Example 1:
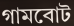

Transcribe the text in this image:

গামবোট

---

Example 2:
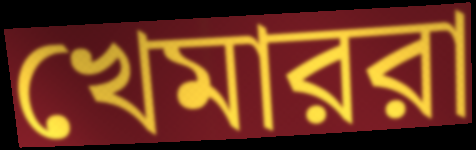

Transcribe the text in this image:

খেমাররা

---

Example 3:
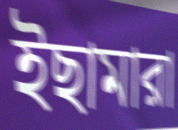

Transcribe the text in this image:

ইছামারা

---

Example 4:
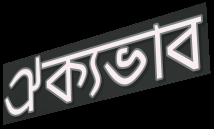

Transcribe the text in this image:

ঐক্যভাব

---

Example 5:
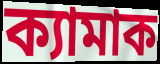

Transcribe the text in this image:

ক্যামাক